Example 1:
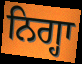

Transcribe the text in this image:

ਨਿਗ੍ਹਾ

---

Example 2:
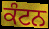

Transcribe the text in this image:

ਕੰਟਨ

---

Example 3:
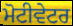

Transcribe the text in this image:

ਮੋਟੀਵੇਟਰ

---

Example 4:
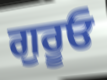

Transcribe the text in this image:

ਗੁਰੂਓ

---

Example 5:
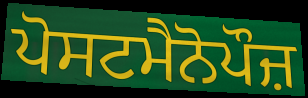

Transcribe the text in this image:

ਪੋਸਟਮੈਨੋਪੌਜ਼